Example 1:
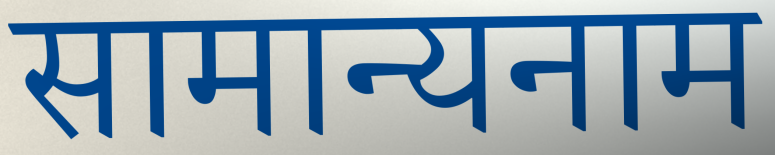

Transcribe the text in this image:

सामान्यनाम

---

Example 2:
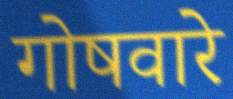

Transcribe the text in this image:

गोषवारे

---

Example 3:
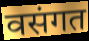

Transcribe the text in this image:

वसंगत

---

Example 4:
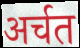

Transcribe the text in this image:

अर्चत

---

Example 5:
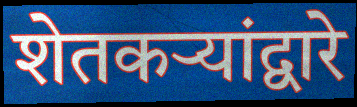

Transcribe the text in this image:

शेतकऱ्यांद्वारे